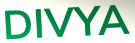
DIVYA